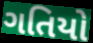
ગતિયો